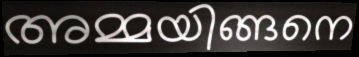
അമ്മയിങ്ങനെ